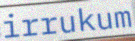
irrukum